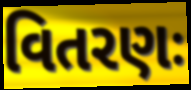
વિતરણઃ